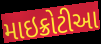
માઇક્રોટીઆ